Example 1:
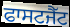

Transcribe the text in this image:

ਫਾਸਟਜੈੱਟ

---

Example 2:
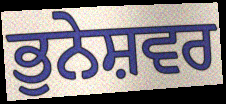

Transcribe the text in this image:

ਭੁਨੇਸ਼ਵਰ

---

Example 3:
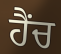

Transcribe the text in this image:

ਹੈਂਚ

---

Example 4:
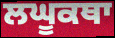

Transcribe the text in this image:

ਲਘੂਕਥਾ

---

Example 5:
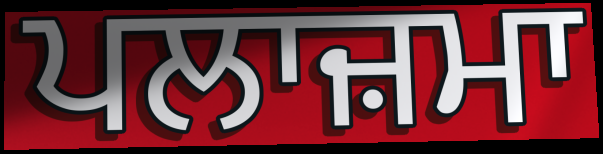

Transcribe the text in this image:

ਪਲਾਜ਼ਮਾ